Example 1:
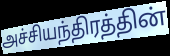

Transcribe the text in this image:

அச்சியந்திரத்தின்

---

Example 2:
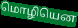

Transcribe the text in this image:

மொழியென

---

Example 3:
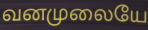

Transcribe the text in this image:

வனமுலையே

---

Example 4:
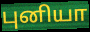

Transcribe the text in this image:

புனியா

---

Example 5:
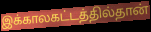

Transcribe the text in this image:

இக்காலகட்டத்தில்தான்